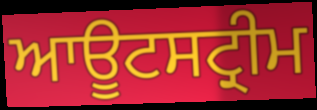
ਆਊਟਸਟ੍ਰੀਮ